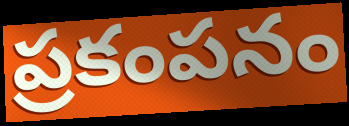
ప్రకంపనం